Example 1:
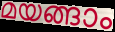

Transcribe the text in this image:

മയങ്ങാം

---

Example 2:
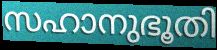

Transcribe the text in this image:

സഹാനുഭൂതി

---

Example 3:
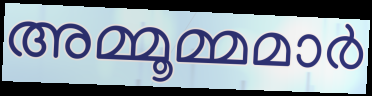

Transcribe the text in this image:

അമ്മൂമ്മമാർ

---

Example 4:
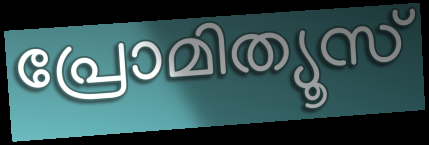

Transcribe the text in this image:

പ്രോമിത്യൂസ്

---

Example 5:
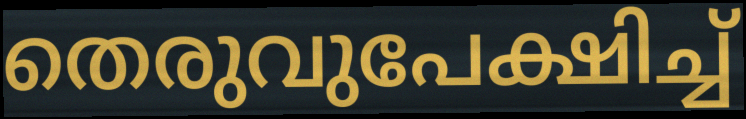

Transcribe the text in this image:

തെരുവുപേക്ഷിച്ച്